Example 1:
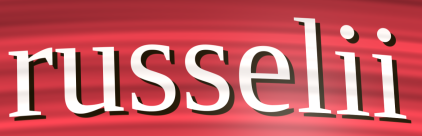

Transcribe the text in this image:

russelii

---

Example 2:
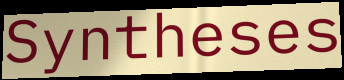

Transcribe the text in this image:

Syntheses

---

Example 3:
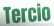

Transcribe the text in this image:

Tercio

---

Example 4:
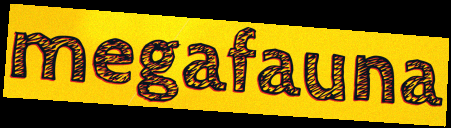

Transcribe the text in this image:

megafauna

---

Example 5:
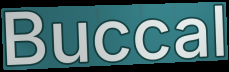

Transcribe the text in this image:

Buccal